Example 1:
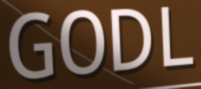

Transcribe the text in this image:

GODL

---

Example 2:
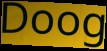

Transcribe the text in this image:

Doog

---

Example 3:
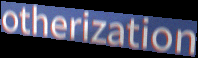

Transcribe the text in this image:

otherization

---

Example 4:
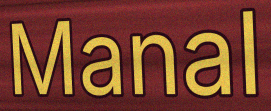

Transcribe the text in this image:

Manal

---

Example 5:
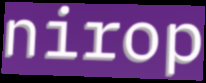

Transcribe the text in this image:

nirop